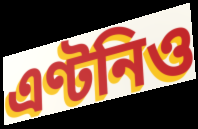
এণ্টনিও